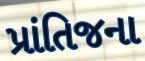
પ્રાંતિજના